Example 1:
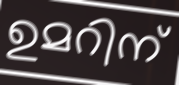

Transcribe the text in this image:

ഉമറിന്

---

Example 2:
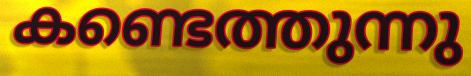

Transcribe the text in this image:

കണ്ടെത്തുന്നു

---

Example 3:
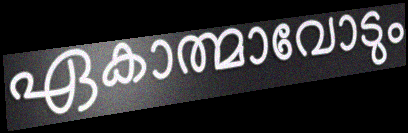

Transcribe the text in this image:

ഏകാത്മാവോടും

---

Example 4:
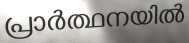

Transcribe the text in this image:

പ്രാർത്ഥനയിൽ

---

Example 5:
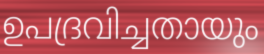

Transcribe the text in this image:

ഉപദ്രവിച്ചതായും